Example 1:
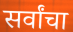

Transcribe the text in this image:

सर्वांचा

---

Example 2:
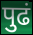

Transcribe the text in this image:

पुढं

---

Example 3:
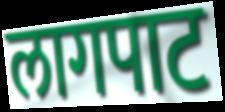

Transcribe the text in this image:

लागपाट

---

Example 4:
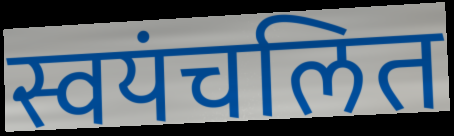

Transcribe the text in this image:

स्वयंचलित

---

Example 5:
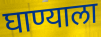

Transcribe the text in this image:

घाण्याला